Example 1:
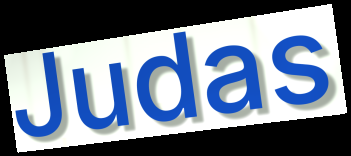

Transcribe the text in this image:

Judas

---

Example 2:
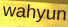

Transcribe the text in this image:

wahyun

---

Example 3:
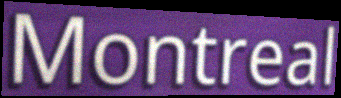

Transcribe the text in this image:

Montreal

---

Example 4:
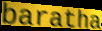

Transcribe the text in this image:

baratha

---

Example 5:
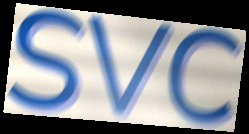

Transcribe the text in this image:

SVC